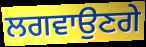
ਲਗਵਾਉਣਗੇ